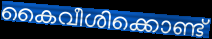
കൈവീശിക്കൊണ്ട്